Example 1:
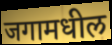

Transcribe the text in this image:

जगामधील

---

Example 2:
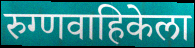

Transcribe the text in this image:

रुग्णवाहिकेला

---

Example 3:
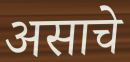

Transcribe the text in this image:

असाचे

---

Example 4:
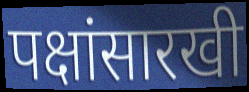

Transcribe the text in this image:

पक्षांसारखी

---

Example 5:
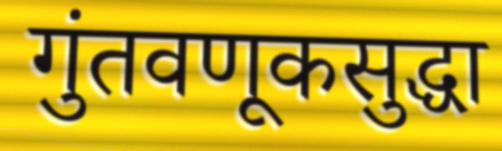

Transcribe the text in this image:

गुंतवणूकसुद्धा